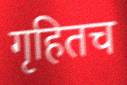
गृहितच